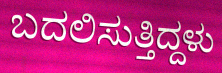
ಬದಲಿಸುತ್ತಿದ್ದಳು